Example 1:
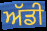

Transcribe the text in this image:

ਅੱਡੀ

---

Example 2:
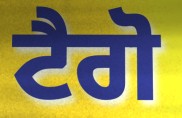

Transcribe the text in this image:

ਟੈਗੋ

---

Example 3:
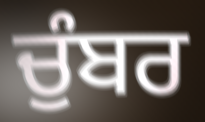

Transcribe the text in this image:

ਚੁੰਬਰ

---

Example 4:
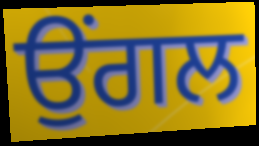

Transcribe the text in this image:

ਉੰਗਲ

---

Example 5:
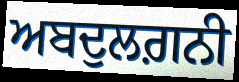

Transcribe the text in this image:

ਅਬਦੁਲਗ਼ਨੀ